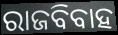
ରାଜବିବାହ